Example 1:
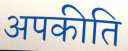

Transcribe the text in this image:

अपकीति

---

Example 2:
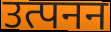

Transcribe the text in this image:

उत्पनन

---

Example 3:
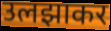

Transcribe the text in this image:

उलझाकर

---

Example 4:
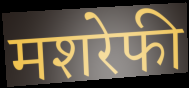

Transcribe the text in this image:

मशरेफी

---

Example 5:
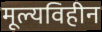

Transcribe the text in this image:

मूल्यविहीन